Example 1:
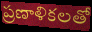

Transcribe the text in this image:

ప్రణాళికలతో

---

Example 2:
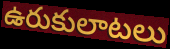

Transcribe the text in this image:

ఉరుకులాటలు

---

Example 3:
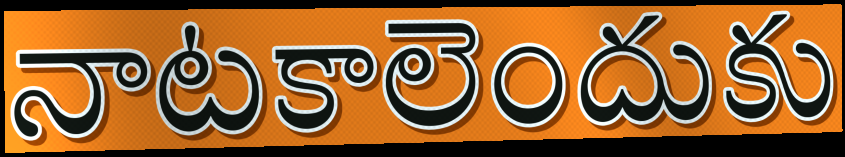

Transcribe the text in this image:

నాటకాలెందుకు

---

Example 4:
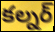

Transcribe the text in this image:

కల్నర్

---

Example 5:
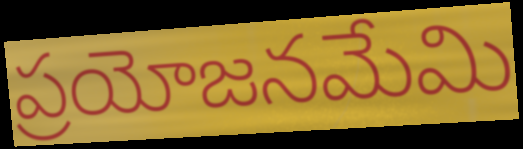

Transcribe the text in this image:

ప్రయోజనమేమి